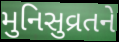
મુનિસુવ્રતને